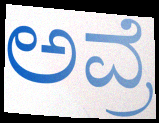
ಅವ್ರೆ